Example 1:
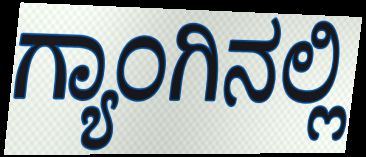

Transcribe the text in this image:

ಗ್ಯಾಂಗಿನಲ್ಲಿ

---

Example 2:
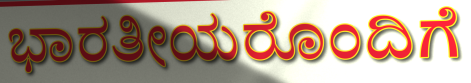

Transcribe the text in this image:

ಭಾರತೀಯರೊಂದಿಗೆ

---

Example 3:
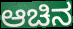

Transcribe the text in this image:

ಆಚಿನ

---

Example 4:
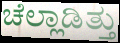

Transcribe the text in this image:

ಚೆಲ್ಲಾಡಿತ್ತು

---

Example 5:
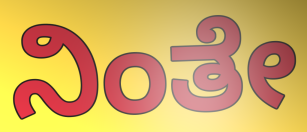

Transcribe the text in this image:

ನಿಂತೇ